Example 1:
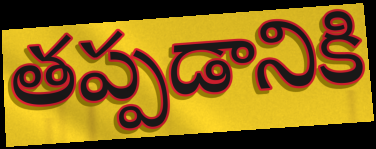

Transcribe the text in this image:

తప్పడానికి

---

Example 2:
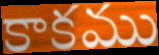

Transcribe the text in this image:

కాకము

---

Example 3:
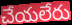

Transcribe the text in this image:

చేయలేరు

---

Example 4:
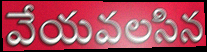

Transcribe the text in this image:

వేయవలసిన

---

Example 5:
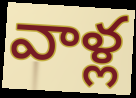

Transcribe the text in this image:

వాళ్ల